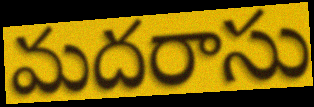
మదరాసు